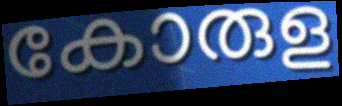
കോരുള